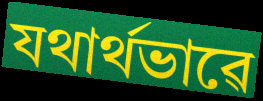
যথাৰ্থভাৱে